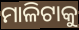
ମାଳିଟାକୁ